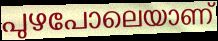
പുഴപോലെയാണ്